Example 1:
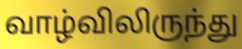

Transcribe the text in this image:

வாழ்விலிருந்து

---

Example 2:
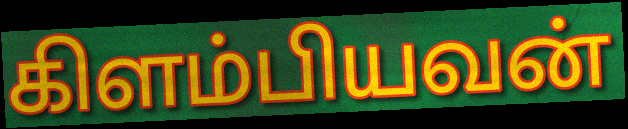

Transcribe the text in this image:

கிளம்பியவன்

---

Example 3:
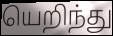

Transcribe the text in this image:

யெறிந்து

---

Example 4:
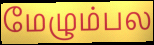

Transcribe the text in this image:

மேழும்பல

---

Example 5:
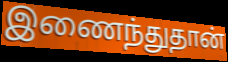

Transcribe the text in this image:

இணைந்துதான்